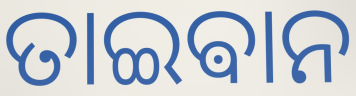
ତାଇଵାନ